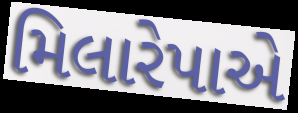
મિલારેપાએ